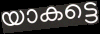
യാകട്ടെ